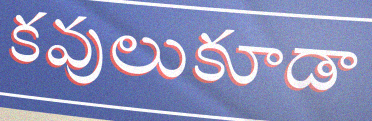
కవులుకూడా